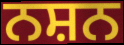
ਨਸ਼ਨ